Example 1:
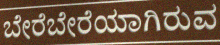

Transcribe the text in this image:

ಬೇರೆಬೇರೆಯಾಗಿರುವ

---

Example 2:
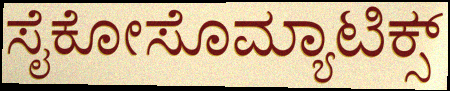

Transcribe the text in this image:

ಸೈಕೋಸೊಮ್ಯಾಟಿಕ್ಸ್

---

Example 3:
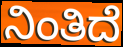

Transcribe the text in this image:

ನಿಂತಿದೆ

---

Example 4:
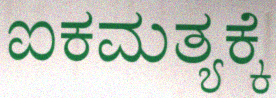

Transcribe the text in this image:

ಐಕಮತ್ಯಕ್ಕೆ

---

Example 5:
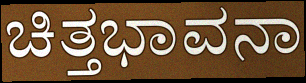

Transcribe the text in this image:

ಚಿತ್ತಭಾವನಾ